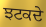
ਝਟਕਦੇ